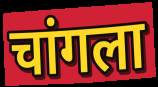
चांगला